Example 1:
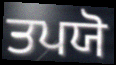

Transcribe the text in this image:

ਤਪਯੋ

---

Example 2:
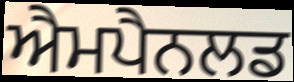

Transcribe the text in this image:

ਐਮਪੈਨਲਡ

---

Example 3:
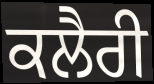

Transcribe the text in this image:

ਕਲੈਰੀ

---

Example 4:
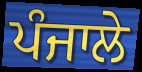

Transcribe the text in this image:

ਪੰਜਾਲੇ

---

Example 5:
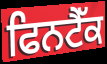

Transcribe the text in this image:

ਫਿਨਟੈੱਕ